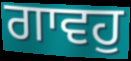
ਗਾਵਹੁ